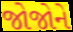
જોજોને